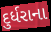
દુર્ધરાના